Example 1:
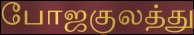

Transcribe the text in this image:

போஜகுலத்து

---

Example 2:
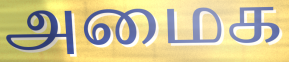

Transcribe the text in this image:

அமைக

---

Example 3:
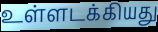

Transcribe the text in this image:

உள்ளடக்கியது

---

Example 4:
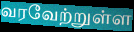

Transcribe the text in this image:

வரவேற்றுள்ள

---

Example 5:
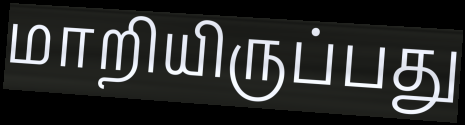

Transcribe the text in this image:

மாறியிருப்பது